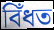
বিঁধত